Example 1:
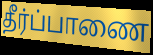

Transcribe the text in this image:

தீர்ப்பாணை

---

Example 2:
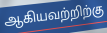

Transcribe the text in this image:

ஆகியவற்றிற்கு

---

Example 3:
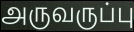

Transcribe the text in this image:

அருவருப்பு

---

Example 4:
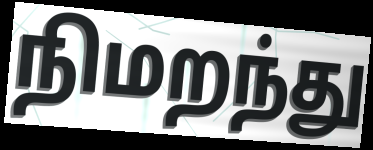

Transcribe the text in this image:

நிமறந்து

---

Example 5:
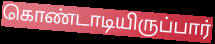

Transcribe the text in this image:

கொண்டாடியிருப்பார்